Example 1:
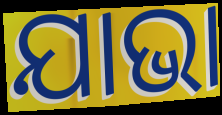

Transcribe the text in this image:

ଯାଭା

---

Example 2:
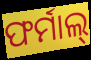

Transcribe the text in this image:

ଫର୍ମାଲ୍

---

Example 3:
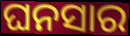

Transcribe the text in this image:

ଘନସାର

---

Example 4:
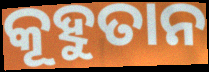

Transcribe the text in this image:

କୂହୁତାନ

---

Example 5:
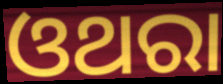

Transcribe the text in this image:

ଓଥରା